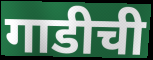
गाडीची